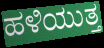
ಹಳಿಯುತ್ತ